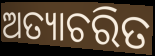
ଅତ୍ୟାଚରିତ